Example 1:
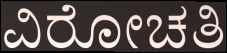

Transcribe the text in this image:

ವಿರೋಚತಿ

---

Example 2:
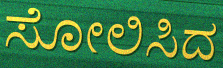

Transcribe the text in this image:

ಸೋಲಿಸಿದ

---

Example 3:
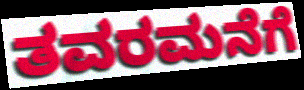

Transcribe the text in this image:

ತವರಮನೆಗೆ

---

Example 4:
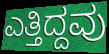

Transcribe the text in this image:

ಎತ್ತಿದ್ದವು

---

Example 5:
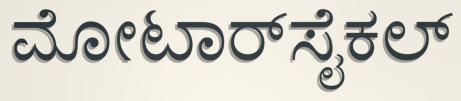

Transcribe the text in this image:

ಮೋಟಾರ್‌ಸೈಕಲ್